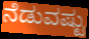
ನೆಡುವಷ್ಟು